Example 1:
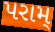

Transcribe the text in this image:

પરામ્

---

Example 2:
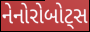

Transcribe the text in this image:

નેનોરોબોટ્સ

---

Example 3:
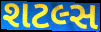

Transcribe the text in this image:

શટલ્સ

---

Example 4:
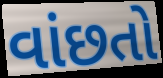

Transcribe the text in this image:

વાંછતો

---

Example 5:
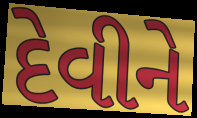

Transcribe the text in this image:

દેવીને